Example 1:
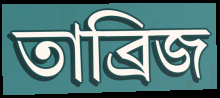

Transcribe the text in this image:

তাব্রিজ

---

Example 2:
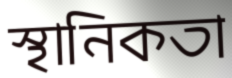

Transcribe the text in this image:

স্থানিকতা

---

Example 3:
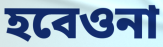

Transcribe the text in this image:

হবেওনা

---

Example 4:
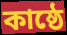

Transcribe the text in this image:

কাষ্ঠে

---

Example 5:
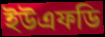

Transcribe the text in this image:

ইউএফডি